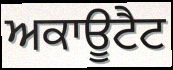
ਅਕਾਊਟੈਟ